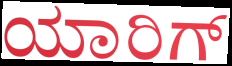
ಯಾರಿಗ್